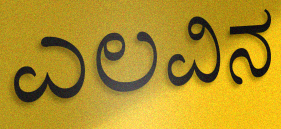
ಎಲವಿನ